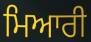
ਮਿਆਰੀ